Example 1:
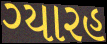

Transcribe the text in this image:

ગ્યારહ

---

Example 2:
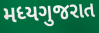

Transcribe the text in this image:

મધ્યગુજરાત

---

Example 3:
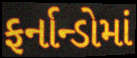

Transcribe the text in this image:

ફર્નાન્ડોમાં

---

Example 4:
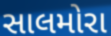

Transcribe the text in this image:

સાલમોરા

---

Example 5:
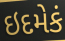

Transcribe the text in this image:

ઇદમેકં